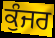
ਕੁੰਜਰ